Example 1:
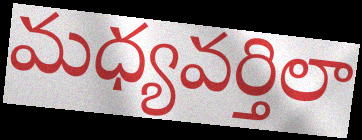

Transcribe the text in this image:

మధ్యవర్తిలా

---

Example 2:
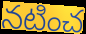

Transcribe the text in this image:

నటించ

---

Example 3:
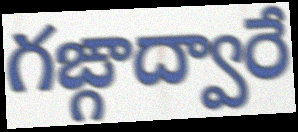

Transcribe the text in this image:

గఙ్గాద్వారే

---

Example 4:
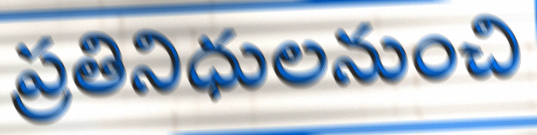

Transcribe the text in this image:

ప్రతినిధులనుంచి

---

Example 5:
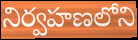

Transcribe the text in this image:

నిర్వహణలోని